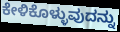
ಕೇಳಿಕೊಳ್ಳುವುದನ್ನು